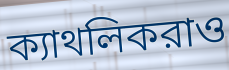
ক্যাথলিকরাও